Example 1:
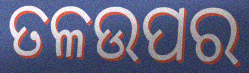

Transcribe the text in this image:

ତଳଉପର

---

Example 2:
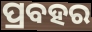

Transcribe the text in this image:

ପ୍ରବହର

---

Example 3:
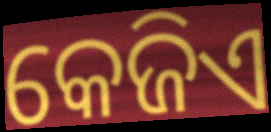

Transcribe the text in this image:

କେଜିଏ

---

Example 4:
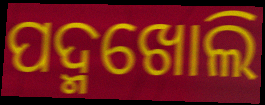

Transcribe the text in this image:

ପଦ୍ମଖୋଲି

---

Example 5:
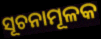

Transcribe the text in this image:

ସୂଚନାମୂଳକ